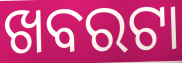
ଖବରଟା